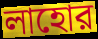
লাহোর